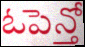
ఓపెన్తో